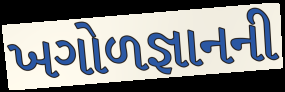
ખગોળજ્ઞાનની